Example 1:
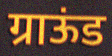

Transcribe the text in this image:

ग्राऊंड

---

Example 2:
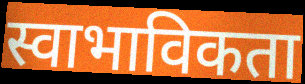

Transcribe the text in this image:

स्वाभाविकता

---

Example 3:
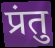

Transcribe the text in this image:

प्रंतु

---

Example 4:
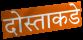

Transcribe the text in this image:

दोस्ताकडे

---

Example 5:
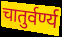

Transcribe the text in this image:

चातुर्वर्ण्य